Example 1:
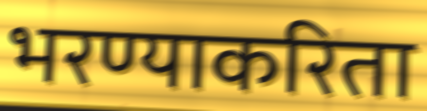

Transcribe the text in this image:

भरण्याकरिता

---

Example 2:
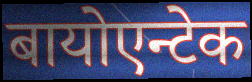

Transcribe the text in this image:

बायोएन्टेक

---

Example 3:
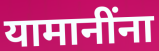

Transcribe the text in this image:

यामानींना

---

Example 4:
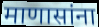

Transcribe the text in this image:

माणासांना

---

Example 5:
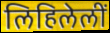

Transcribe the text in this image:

लिहिलेलीं